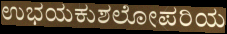
ಉಭಯಕುಶಲೋಪರಿಯ